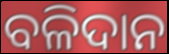
ବଳିଦାନ